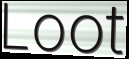
Loot